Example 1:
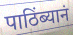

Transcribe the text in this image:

पाठिंब्यानं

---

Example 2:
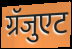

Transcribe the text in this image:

ग्रॅजुएट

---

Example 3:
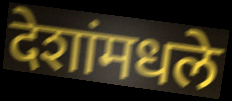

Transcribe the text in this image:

देशांमधले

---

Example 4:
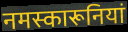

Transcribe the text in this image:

नमस्कारूनियां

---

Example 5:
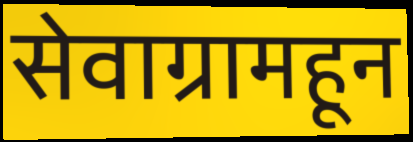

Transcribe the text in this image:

सेवाग्रामहून